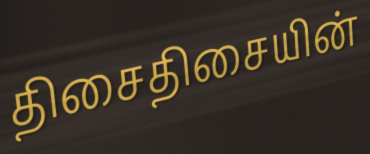
திசைதிசையின்